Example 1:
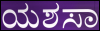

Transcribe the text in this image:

ಯಶಸಾ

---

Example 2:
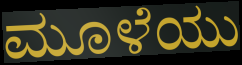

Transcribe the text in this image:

ಮೂಳೆಯು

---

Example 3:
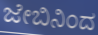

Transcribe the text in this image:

ಜೇಬಿನಿಂದ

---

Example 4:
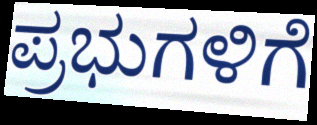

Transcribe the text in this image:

ಪ್ರಭುಗಳಿಗೆ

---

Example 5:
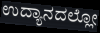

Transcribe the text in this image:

ಉದ್ಯಾನದಲ್ಲೋ